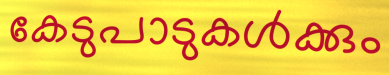
കേടുപാടുകൾക്കും